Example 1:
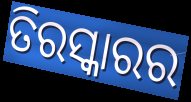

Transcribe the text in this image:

ତିରସ୍କାରର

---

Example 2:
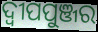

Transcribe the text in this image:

ଦ୍ଵୀପପୁଞ୍ଜର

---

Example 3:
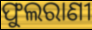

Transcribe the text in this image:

ଫୁଲରାଣୀ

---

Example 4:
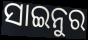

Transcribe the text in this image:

ସାଇନୁର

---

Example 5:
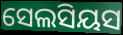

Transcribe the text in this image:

ସେଲସିୟସ